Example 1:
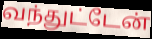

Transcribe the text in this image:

வந்துட்டேன்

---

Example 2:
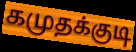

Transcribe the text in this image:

கமுதக்குடி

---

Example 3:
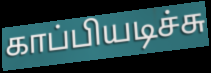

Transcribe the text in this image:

காப்பியடிச்சு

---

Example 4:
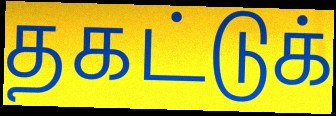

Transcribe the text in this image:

தகட்டுக்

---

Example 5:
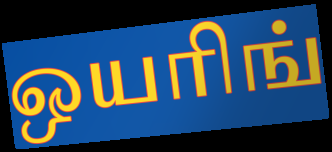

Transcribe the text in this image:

ஒயரிங்